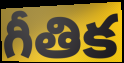
గీతిక